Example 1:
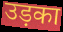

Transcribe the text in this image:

उड़का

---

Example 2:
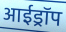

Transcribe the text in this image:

आईड्रॉप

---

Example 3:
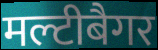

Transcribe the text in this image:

मल्‍टीबैगर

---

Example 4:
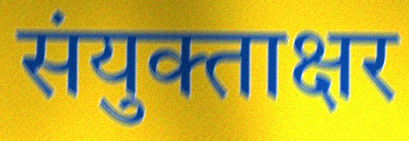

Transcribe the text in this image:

संयुक्ताक्षर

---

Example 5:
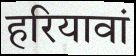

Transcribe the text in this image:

हरियावां